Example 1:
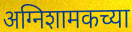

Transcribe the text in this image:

अग्निशामकच्या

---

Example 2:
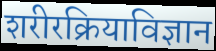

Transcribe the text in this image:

शरीरक्रियाविज्ञान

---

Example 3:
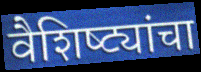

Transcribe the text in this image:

वैशिष्ट्यांचा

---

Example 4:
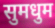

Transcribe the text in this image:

सुमधुम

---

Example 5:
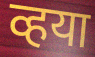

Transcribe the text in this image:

व्हया